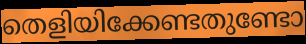
തെളിയിക്കേണ്ടതുണ്ടോ